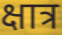
क्षात्र